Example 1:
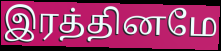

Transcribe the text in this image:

இரத்தினமே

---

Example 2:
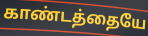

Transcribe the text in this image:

காண்டத்தையே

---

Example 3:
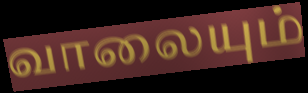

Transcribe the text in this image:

வாலையும்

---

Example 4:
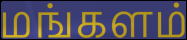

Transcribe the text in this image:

மங்களம்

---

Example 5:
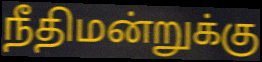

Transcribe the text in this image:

நீதிமன்றுக்கு